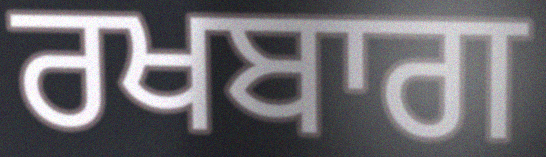
ਰਖਬਾਗ